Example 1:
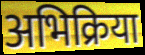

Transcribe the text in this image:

अभिक्रिया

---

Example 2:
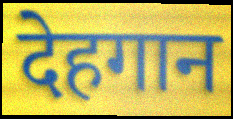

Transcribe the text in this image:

देहगान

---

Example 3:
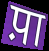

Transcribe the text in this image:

प़ा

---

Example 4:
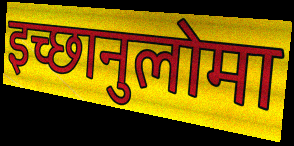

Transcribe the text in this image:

इच्छानुलोमा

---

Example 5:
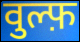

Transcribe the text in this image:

वुल्फ़